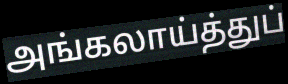
அங்கலாய்த்துப்